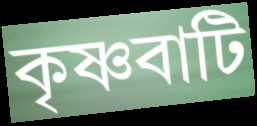
কৃষ্ণবাটি